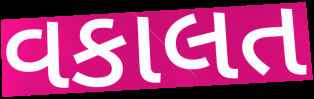
વકાલત